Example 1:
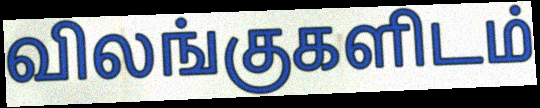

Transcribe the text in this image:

விலங்குகளிடம்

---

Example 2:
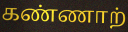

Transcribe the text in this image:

கண்ணாற்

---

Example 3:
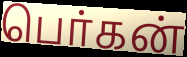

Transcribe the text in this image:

பெர்கன்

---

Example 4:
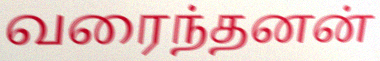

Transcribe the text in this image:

வரைந்தனன்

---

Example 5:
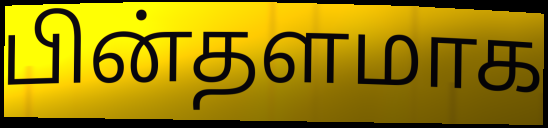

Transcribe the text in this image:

பின்தளமாக